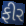
ફીર